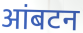
आंबटन